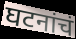
घटनांचं